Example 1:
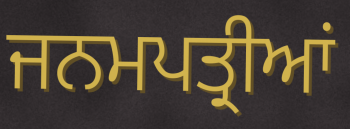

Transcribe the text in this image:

ਜਨਮਪਤ੍ਰੀਆਂ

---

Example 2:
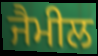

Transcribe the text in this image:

ਜੈਮੀਲ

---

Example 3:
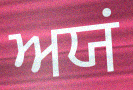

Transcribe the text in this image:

ਅਯਂ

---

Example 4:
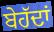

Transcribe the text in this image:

ਬੇਹੱਦਾਂ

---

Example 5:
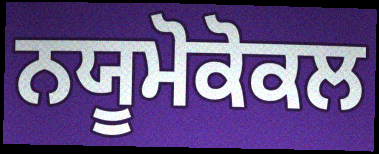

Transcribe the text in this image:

ਨਯੂਮੋਕੋਕਲ